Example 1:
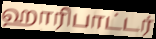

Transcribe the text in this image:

ஹாரிபாட்டர்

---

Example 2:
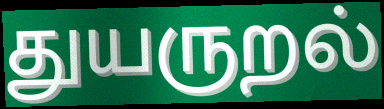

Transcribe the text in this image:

துயருறல்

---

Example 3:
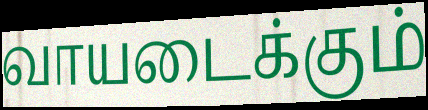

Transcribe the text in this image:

வாயடைக்கும்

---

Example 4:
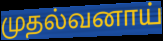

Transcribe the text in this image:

முதல்வனாய்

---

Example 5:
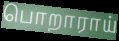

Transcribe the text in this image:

பொறாராய்